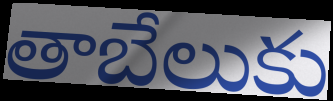
తాబేలుకు